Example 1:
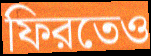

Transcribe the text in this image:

ফিরতেও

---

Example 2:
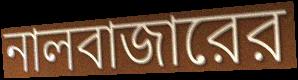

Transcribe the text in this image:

নালবাজারের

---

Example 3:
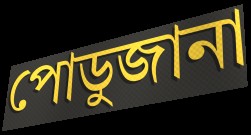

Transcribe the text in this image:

পোডুজানা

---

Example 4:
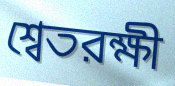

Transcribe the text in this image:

শ্বেতরক্ষী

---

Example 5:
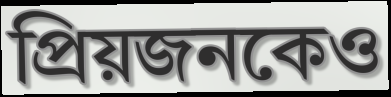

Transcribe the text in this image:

প্রিয়জনকেও